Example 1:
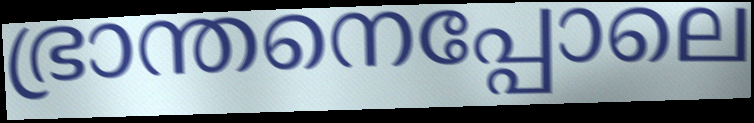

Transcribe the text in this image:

ഭ്രാന്തനെപ്പോലെ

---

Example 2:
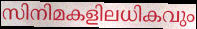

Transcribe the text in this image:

സിനിമകളിലധികവും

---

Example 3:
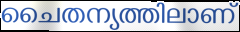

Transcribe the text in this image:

ചൈതന്യത്തിലാണ്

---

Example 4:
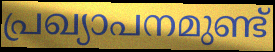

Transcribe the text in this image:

പ്രഖ്യാപനമുണ്ട്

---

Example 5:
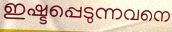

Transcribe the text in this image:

ഇഷ്ടപ്പെടുന്നവനെ